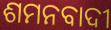
ଶମନବାଦୀ